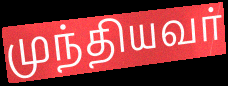
முந்தியவர்